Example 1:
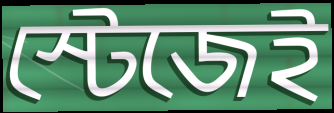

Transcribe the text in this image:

স্টেজেই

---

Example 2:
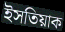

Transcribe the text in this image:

ইসতিয়াক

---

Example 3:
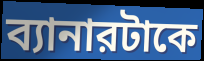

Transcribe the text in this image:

ব্যানারটাকে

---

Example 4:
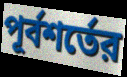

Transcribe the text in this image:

পূর্বশর্তের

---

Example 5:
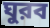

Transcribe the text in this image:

ঘুরব